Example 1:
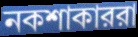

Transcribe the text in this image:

নকশাকাররা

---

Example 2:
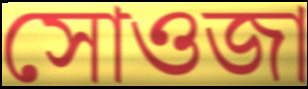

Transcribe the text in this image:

সোওজা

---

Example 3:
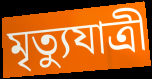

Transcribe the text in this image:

মৃত্যুযাত্রী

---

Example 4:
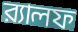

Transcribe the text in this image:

র‍্যালফ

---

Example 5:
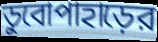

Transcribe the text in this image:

ডুবোপাহাড়ের